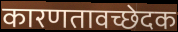
कारणतावच्छेदक